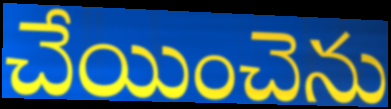
చేయించెను